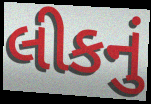
લીકનું